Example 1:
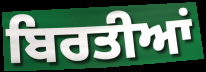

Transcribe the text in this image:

ਬਿਰਤੀਆਂ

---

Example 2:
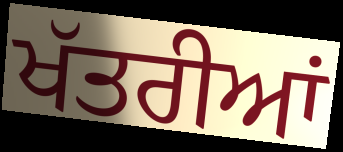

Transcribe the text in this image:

ਖੱਤਰੀਆਂ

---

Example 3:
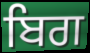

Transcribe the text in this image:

ਬਿਗ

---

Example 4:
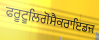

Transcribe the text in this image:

ਫਰੂਟੂਲਿਗੋਸੈਕਰਾਇਡਜ਼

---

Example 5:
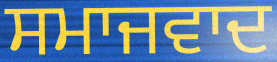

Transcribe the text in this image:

ਸਮਾਜਵਾਦ